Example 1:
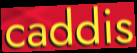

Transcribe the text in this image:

caddis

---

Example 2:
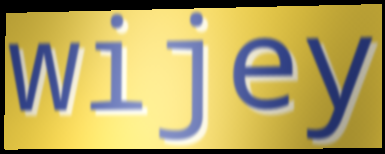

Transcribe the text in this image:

wijey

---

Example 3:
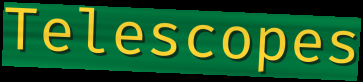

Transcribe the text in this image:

Telescopes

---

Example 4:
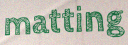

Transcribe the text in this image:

matting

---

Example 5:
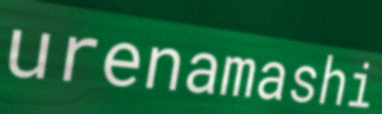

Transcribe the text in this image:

urenamashi